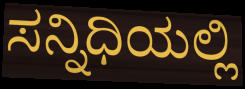
ಸನ್ನಿಧಿಯಲ್ಲಿ